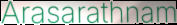
Arasarathnam